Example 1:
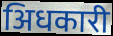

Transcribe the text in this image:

अिधकारी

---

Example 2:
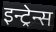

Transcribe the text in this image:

इन्ट्रेन्स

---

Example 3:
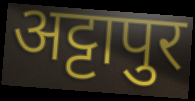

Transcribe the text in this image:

अट्टापुर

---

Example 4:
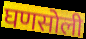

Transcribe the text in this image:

घणसोली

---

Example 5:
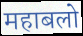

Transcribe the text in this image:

महाबलो